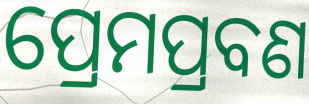
ପ୍ରେମପ୍ରବଣ